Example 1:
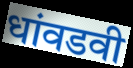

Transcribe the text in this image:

धांवडवी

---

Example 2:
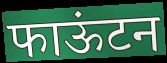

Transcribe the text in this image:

फाऊंटन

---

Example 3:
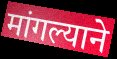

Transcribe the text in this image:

मांगल्याने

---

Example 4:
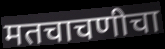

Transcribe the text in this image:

मतचाचणीचा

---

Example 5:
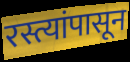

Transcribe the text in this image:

रस्त्यांपासून